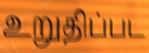
உறுதிப்பட